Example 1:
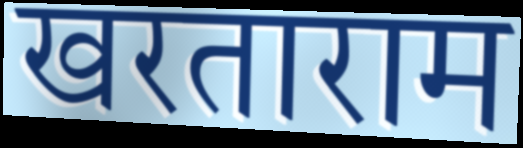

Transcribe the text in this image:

खरताराम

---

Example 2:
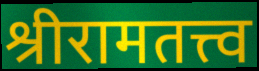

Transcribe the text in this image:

श्रीरामतत्त्व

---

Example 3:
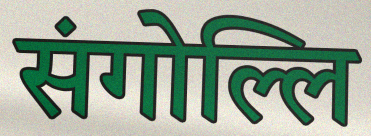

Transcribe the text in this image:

संगोल्लि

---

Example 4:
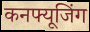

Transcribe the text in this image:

कनफ्यूजिंग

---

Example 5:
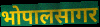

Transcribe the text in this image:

भोपालसागर